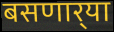
बसणार्‍या